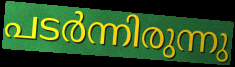
പടർന്നിരുന്നു